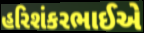
હરિશંકરભાઈએ